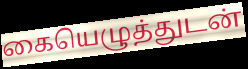
கையெழுத்துடன்